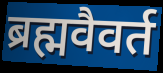
ब्रह्मवैवर्त